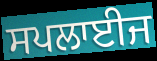
ਸਪਲਾਈਜ